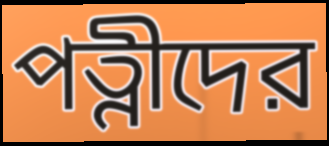
পত্নীদের